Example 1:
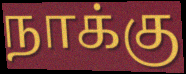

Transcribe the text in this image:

நாக்கு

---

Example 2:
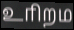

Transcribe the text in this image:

உரிறம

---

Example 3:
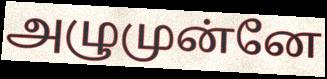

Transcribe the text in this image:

அழுமுன்னே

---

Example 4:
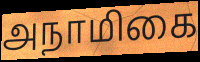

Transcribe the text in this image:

அநாமிகை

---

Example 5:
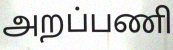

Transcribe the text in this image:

அறப்பணி